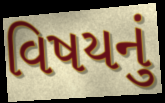
વિષયનું